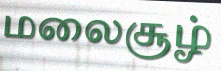
மலைசூழ்